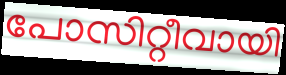
പോസിറ്റീവായി